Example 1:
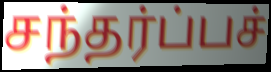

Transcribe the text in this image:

சந்தர்ப்பச்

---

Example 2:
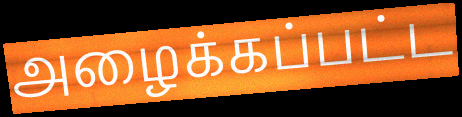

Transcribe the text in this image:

அழைக்கப்பட்ட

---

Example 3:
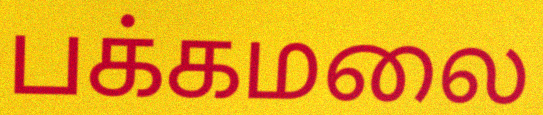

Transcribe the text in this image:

பக்கமலை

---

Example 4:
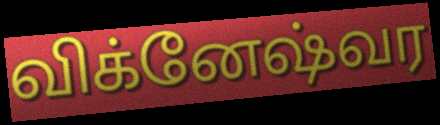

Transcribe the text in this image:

விக்னேஷ்வர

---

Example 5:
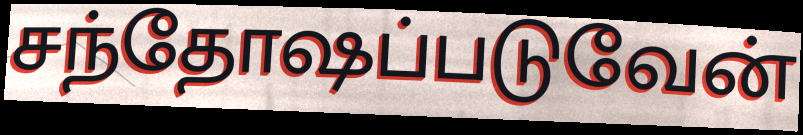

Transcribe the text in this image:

சந்தோஷப்படுவேன்